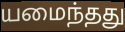
யமைந்தது